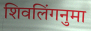
शिवलिंगनुमा